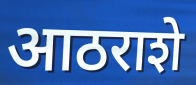
आठराशे